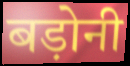
बड़ोनी